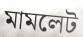
মামলেট